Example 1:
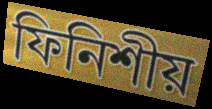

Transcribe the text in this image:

ফিনিশীয়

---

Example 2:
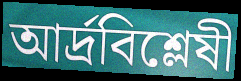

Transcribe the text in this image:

আর্দ্রবিশ্লেষী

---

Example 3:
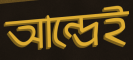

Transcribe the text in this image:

আন্দ্রেই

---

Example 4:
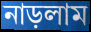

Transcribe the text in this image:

নাড়লাম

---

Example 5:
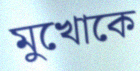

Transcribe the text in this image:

মুখোকে